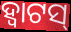
ହ୍ୱାଟସ୍